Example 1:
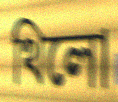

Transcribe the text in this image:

থিলো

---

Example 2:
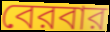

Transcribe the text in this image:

বেরবার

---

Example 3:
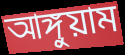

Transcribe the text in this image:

আঙ্গুয়াম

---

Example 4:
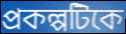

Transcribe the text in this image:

প্রকল্পটিকে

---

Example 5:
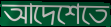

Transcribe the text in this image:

আদেশেতে